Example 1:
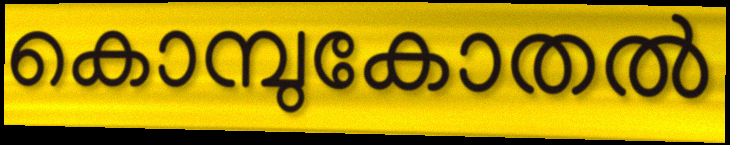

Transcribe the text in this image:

കൊമ്പുകോതൽ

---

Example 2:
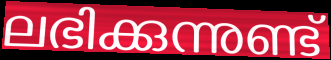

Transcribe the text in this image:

ലഭിക്കുന്നുണ്ട്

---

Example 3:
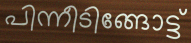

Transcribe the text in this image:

പിന്നീടിങ്ങോട്ട്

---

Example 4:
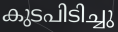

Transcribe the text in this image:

കുടപിടിച്ചു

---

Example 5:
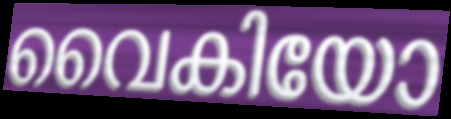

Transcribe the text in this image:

വൈകിയോ